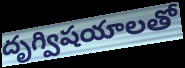
దృగ్విషయాలతో